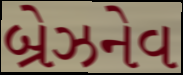
બ્રેઝનેવ